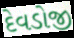
દેવડોજી